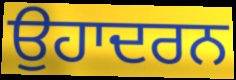
ਉਹਾਦਰਨ